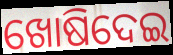
ଖୋଷିଦେଇ